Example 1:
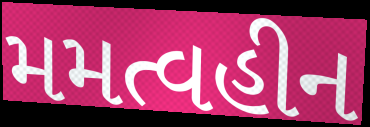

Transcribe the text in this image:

મમત્વહીન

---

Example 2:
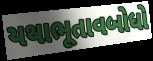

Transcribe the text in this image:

યથાભૂતાવબોધો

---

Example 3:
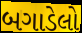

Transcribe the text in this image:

બગાડેલો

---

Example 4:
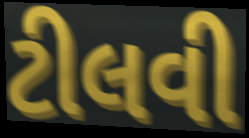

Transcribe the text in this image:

ટીલવી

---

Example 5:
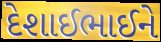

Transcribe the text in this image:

દેશાઈભાઈને